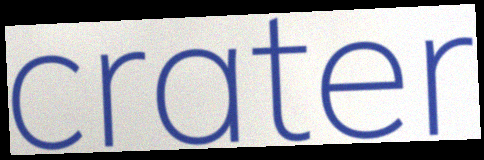
crater